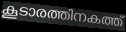
കൂടാരത്തിനകത്ത്